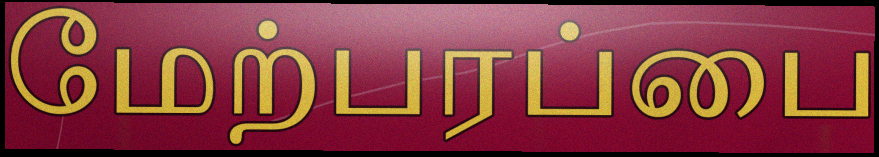
மேற்பரப்பை